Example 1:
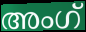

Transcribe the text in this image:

അംഗ്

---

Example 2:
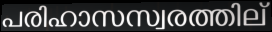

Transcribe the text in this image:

പരിഹാസസ്വരത്തില്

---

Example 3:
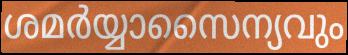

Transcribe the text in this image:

ശമർയ്യാസൈന്യവും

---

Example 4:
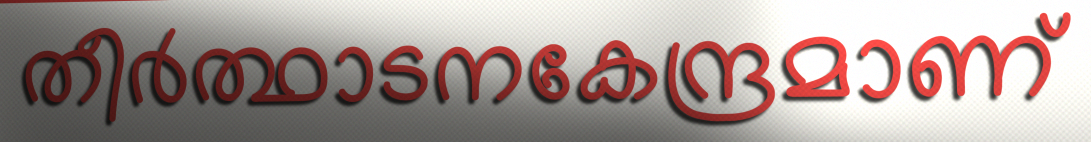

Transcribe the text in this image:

തീർത്ഥാടനകേന്ദ്രമാണ്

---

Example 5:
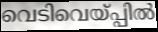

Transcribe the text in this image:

വെടിവെയ്പ്പിൽ